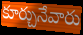
కూర్చునేవారు